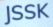
JSSK